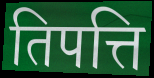
तिपत्ति